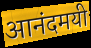
आनंदमयी